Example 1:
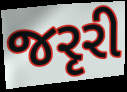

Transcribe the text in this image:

જરૃરી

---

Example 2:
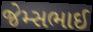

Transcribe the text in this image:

જેમ્સભાઈ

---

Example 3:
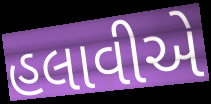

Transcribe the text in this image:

હલાવીએ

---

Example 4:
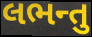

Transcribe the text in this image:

લભન્તુ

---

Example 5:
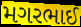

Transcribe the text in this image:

મગરભાઈ